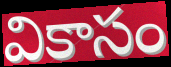
వికాసం